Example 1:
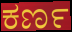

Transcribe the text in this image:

ಕರ್ಣ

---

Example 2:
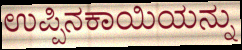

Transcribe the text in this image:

ಉಪ್ಪಿನಕಾಯಿಯನ್ನು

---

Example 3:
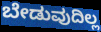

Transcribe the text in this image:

ಬೇಡುವುದಿಲ್ಲ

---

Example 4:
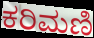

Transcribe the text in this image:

ಕರಿಮಣಿ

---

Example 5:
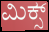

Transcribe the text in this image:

ಮಿಕ್ಸ್